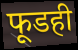
फूडही